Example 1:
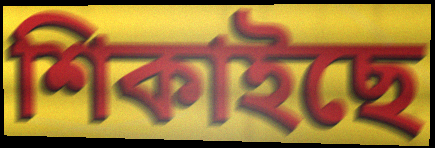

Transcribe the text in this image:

শিকাইছে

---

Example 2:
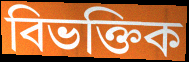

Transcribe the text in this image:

বিভক্তিক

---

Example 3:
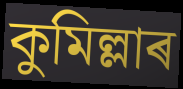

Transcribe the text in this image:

কুমিল্লাৰ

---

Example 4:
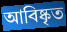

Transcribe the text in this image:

আবিষ্কৃত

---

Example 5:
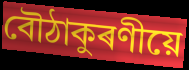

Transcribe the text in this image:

বৌঠাকুৰণীয়ে